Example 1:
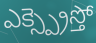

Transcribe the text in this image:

ఎక్స్ప్రెస్తో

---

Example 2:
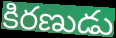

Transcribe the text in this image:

కిరణుడు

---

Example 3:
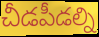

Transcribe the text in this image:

చీడపీడల్ని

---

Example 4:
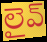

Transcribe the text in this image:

లైవ్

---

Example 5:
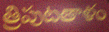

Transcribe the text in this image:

త్రిపుటతాళం